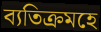
ব্যতিক্ৰমহে